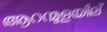
ആറന്മുളയില്